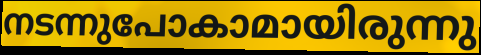
നടന്നുപോകാമായിരുന്നു